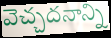
వెచ్చదనాన్ని